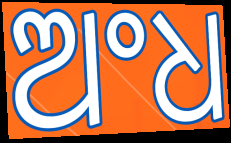
ଅଂଧ